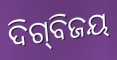
ଦିଗ୍‍ବିଜୟ